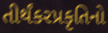
તીર્થંકરપ્રકૃતિનો